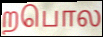
றபொல